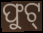
ଫୁଟ୍